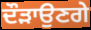
ਦੌੜਾਉਣਗੇ